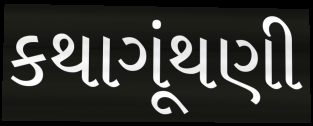
કથાગૂંથણી